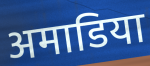
अमाडिया